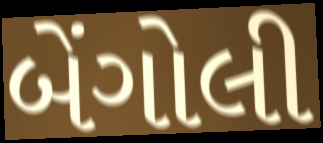
બેંગોલી